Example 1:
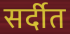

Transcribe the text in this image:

सर्दीत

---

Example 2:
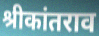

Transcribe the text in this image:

श्रीकांतराव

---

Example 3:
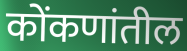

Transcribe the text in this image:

कोंकणांतील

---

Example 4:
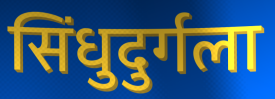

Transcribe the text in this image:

सिंधुदुर्गला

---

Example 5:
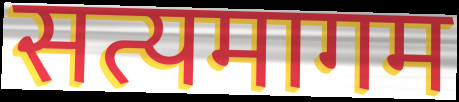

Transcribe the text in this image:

सत्यमागम